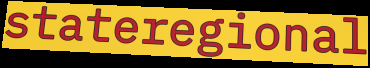
stateregional